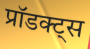
प्रॉडक्ट्स